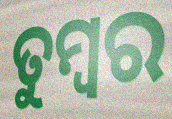
ତୁମ୍ବର